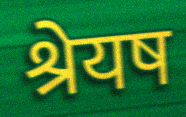
श्रेयष